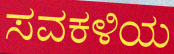
ಸವಕಳಿಯ